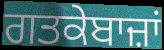
ਗਤਕੇਬਾਜ਼ਾਂ